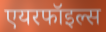
एयरफॉइल्स